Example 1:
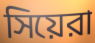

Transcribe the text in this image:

সিয়েরা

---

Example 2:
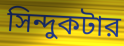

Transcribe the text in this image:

সিন্দুকটার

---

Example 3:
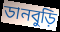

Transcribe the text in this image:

ডানবুড়ি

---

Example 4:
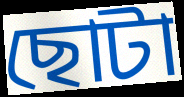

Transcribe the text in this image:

ছোটা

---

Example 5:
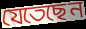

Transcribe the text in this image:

যেতেছেন